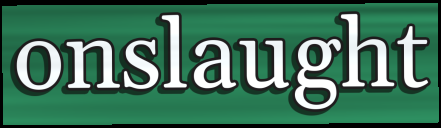
onslaught